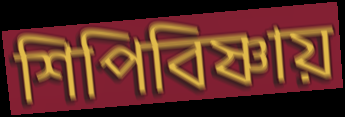
শিপিবিষ্ণায়